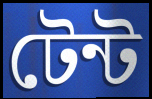
টেন্ট